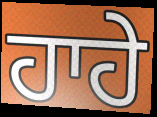
ਹਾਹੇ